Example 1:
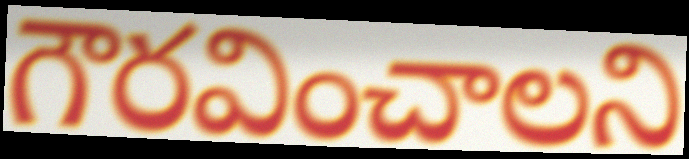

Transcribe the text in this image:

గౌరవించాలని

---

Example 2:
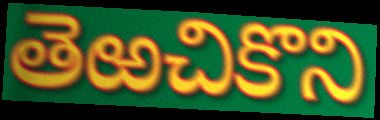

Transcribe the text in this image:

తెఱచికొని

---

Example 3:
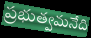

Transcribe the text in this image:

ప్రభుత్వమనేది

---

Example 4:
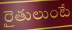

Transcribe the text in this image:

రైతులుంటే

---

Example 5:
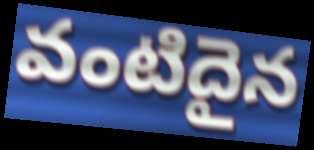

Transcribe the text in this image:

వంటిదైన